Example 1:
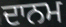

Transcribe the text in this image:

ਦਾਨਮ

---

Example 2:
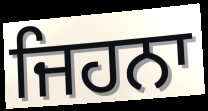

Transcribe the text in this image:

ਜਿਹਨਾ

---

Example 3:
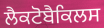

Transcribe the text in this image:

ਲੈਕਟੋਬੈਕਿਲਸ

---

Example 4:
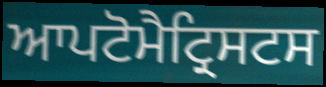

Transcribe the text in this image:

ਆਪਟੋਮੈਟ੍ਰਿਸਟਸ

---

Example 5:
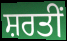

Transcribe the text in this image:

ਸ਼ਰਤੀਂ